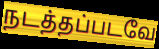
நடத்தப்படவே